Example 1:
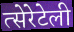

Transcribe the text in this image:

त्सेरेटेली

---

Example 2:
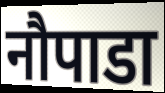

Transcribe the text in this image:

नौपाडा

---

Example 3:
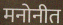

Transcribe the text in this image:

मनोनीत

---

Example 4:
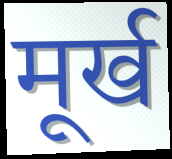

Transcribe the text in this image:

मूर्ख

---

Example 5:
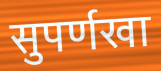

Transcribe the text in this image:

सुपर्णखा